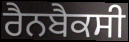
ਰੈਨਬੈਕਸੀ